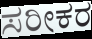
ಸರೀಕರ